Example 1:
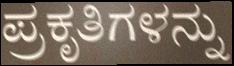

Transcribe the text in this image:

ಪ್ರಕೃತಿಗಳನ್ನು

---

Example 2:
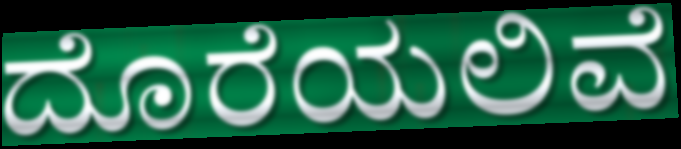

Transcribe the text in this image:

ದೊರೆಯಲಿವೆ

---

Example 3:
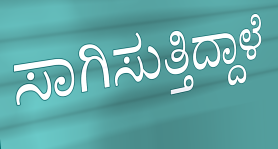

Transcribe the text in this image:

ಸಾಗಿಸುತ್ತಿದ್ದಾಳೆ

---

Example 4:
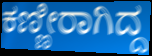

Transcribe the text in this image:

ಕಣ್ಣೀರಾಗಿದ್ದ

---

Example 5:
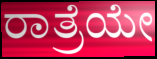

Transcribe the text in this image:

ರಾತ್ರೆಯೇ